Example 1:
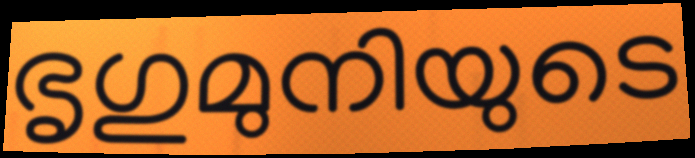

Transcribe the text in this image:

ഭൃഗുമുനിയുടെ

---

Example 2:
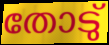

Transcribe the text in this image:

തോടു്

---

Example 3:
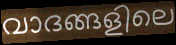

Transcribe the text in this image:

വാദങ്ങളിലെ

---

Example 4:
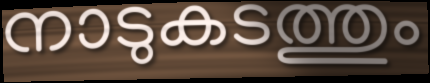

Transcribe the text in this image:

നാടുകടത്തും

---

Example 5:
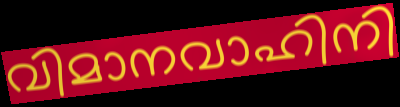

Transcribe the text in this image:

വിമാനവാഹിനി